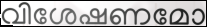
വിശേഷണമോ